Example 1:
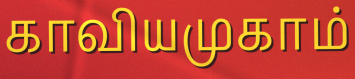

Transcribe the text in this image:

காவியமுகாம்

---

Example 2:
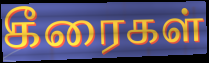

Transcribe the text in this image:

கீரைகள்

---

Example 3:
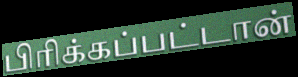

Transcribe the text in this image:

பிரிக்கப்பட்டான்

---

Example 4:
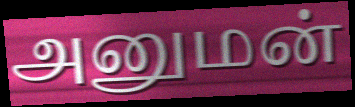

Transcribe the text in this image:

அனுமன்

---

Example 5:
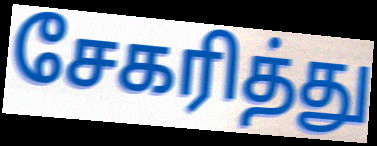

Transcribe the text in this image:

சேகரித்து